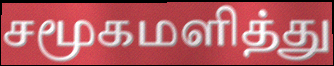
சமூகமளித்து